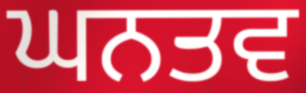
ਘਨਤਵ